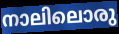
നാലിലൊരു